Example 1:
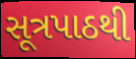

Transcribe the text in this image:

સૂત્રપાઠથી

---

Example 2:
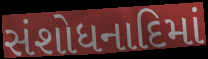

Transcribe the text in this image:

સંશોધનાદિમાં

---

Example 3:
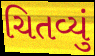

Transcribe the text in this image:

ચિતવ્યું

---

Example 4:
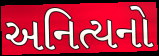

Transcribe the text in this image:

અનિત્યનો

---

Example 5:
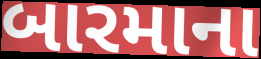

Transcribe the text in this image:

બારમાના